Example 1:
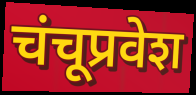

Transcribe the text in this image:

चंचूप्रवेश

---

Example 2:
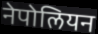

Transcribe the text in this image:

नेपोलियन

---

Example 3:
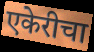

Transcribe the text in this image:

एकेरीचा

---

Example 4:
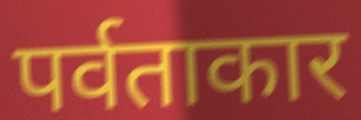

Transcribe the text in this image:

पर्वताकार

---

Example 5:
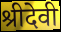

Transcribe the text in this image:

श्रीदेवी